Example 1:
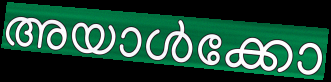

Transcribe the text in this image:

അയാൾക്കോ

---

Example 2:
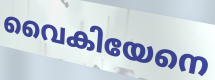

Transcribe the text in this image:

വൈകിയേനെ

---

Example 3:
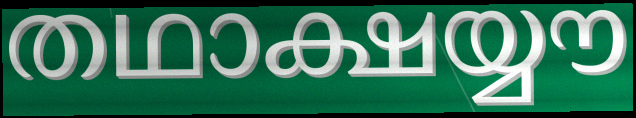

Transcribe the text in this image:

തഥാക്ഷയ്യൗ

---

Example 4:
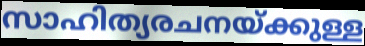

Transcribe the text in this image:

സാഹിത്യരചനയ്ക്കുള്ള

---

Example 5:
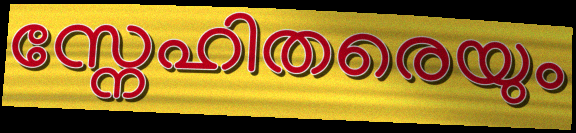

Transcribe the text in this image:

സ്നേഹിതരെയും